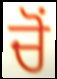
ਚੋਂ